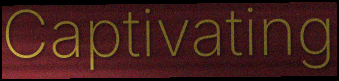
Captivating